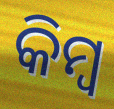
କିମ୍ବ